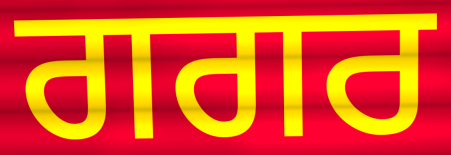
ਗਗਰ